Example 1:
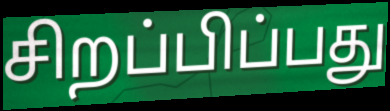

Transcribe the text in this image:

சிறப்பிப்பது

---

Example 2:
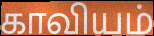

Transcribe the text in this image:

காவியம்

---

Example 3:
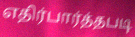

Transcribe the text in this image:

எதிர்பார்த்தபடி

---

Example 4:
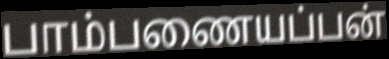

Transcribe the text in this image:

பாம்பணையப்பன்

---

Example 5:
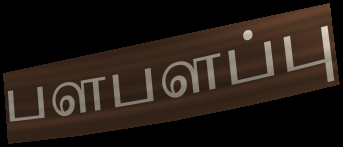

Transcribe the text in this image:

பளபளப்பு